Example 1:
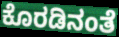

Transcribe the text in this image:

ಕೊರಡಿನಂತೆ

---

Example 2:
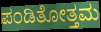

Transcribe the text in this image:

ಪಂಡಿತೋತ್ತಮ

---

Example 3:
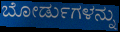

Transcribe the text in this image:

ಬೋರ್ಡುಗಳನ್ನು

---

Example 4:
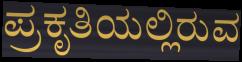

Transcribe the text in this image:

ಪ್ರಕೃತಿಯಲ್ಲಿರುವ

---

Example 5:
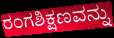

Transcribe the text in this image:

ರಂಗಶಿಕ್ಷಣವನ್ನು